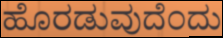
ಹೊರಡುವುದೆಂದು